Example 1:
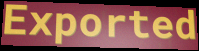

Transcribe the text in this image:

Exported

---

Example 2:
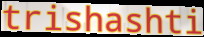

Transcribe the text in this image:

trishashti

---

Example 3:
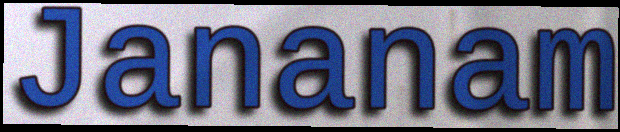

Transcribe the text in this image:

Jananam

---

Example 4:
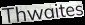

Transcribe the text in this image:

Thwaites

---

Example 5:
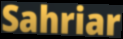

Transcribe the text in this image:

Sahriar